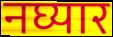
नघ्यार